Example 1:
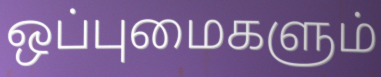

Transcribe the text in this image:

ஒப்புமைகளும்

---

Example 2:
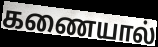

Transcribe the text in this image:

கணையால்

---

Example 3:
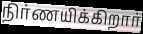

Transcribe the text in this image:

நிர்ணயிக்கிறார்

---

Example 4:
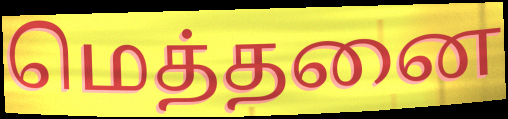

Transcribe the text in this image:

மெத்தனை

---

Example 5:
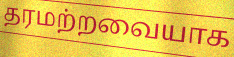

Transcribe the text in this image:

தரமற்றவையாக